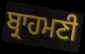
ਬ੍ਰਾਹਮਣੀ